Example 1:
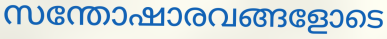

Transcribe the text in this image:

സന്തോഷാരവങ്ങളോടെ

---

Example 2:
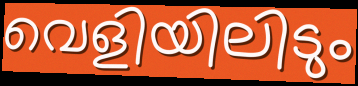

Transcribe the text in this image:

വെളിയിലിടും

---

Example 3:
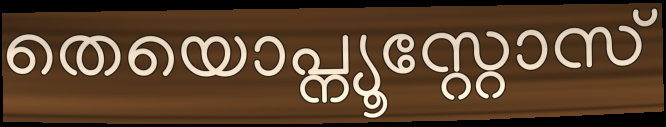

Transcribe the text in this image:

തെയൊപ്ന്യൂസ്റ്റോസ്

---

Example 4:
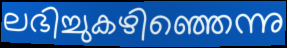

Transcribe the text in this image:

ലഭിച്ചുകഴിഞ്ഞെന്നു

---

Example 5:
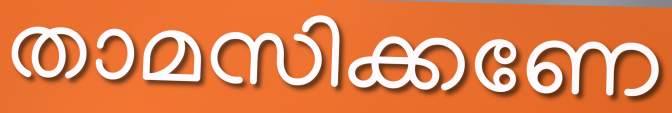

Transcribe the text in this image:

താമസിക്കണേ